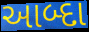
આબ્દા